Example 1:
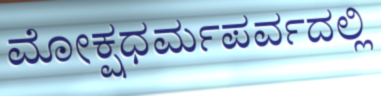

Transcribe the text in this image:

ಮೋಕ್ಷಧರ್ಮಪರ್ವದಲ್ಲಿ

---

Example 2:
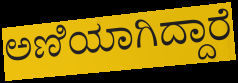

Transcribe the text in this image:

ಅಣಿಯಾಗಿದ್ದಾರೆ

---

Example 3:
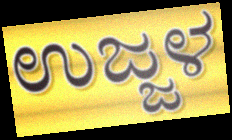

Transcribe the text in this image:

ಉಜ್ಜಳ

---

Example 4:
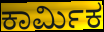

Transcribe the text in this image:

ಕಾರ್ಮಿಕ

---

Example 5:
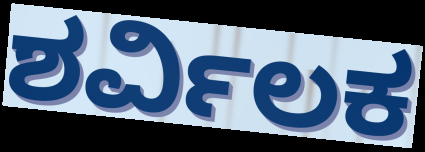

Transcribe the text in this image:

ಶರ್ವಿಲಕ